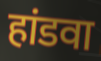
हांडवा